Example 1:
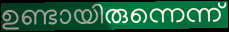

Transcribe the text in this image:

ഉണ്ടായിരുന്നെന്ന്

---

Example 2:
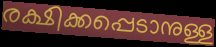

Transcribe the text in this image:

രക്ഷിക്കപ്പെടാനുള്ള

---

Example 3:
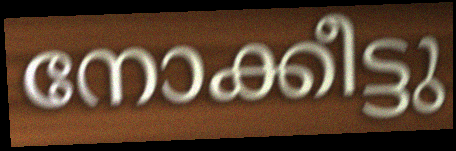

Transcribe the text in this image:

നോക്കീട്ടു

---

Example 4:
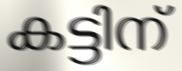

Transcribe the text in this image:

കട്ടിന്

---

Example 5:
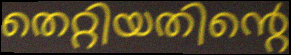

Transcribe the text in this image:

തെറ്റിയതിന്റെ